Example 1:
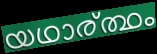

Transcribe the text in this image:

യഥാര്ത്ഥം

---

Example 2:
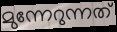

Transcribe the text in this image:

മുന്നേറുന്നത്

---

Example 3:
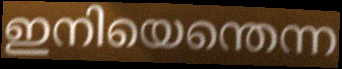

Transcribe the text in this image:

ഇനിയെന്തെന്ന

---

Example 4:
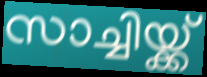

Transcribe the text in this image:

സാച്ചിയ്ക്ക്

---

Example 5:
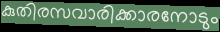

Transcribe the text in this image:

കുതിരസവാരിക്കാരനോടും